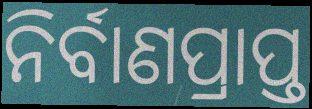
ନିର୍ବାଣପ୍ରାପ୍ତ